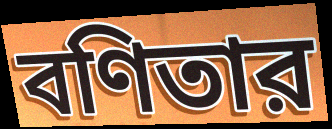
বণিতার